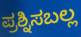
ಪ್ರಶ್ನಿಸಬಲ್ಲ